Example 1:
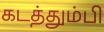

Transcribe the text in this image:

கடத்தும்பி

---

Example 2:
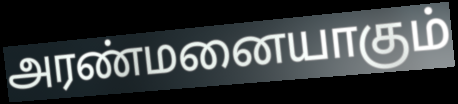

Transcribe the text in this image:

அரண்மனையாகும்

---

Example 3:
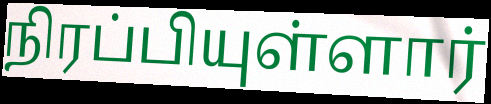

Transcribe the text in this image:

நிரப்பியுள்ளார்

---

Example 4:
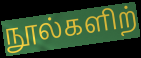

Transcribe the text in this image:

நூல்களிற்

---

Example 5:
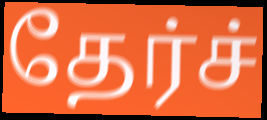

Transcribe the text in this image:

தேர்ச்